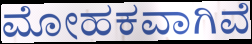
ಮೋಹಕವಾಗಿವೆ